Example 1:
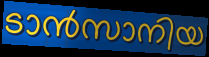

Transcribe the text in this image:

ടാൻസാനിയ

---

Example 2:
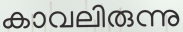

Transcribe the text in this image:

കാവലിരുന്നു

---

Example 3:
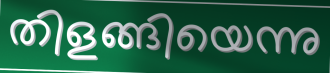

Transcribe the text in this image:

തിളങ്ങിയെന്നു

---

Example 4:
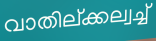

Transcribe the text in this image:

വാതില്ക്കല്വച്ച്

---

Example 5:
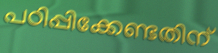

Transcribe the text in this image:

പഠിപ്പിക്കേണ്ടതിന്